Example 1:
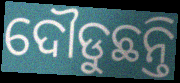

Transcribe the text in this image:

ଦୌଡୁଛନ୍ତି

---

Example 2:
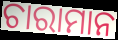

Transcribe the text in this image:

ଚାରାମାନ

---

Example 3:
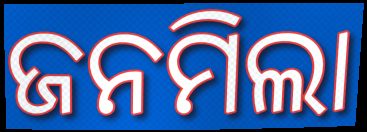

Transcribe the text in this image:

ଜନମିଲା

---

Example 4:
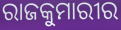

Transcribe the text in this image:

ରାଜକୁମାରୀର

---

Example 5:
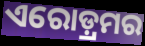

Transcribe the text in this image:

ଏରୋଡ଼୍ରମର